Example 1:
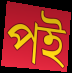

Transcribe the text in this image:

পই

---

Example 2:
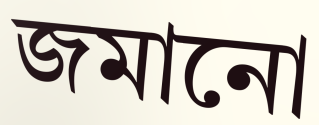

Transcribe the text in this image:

জমানো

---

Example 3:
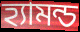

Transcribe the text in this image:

হ্যামন্ড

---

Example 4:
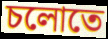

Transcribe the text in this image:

চলোতে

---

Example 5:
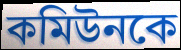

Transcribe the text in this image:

কমিউনকে